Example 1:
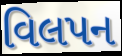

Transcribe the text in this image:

વિલપન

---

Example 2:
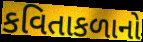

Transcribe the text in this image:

કવિતાકળાનો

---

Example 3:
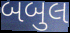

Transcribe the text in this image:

બબુલ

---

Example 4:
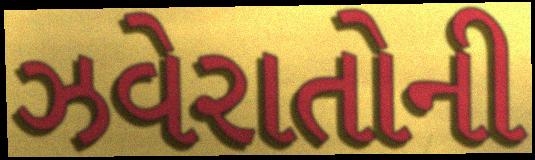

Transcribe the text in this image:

ઝવેરાતોની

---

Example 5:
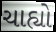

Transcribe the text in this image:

ચાહ્યો